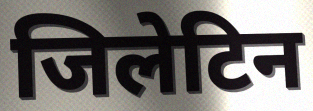
जिलेटिन